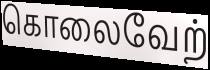
கொலைவேற்